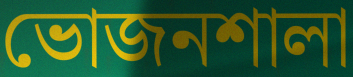
ভোজনশালা